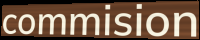
commision